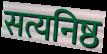
सत्यनिष्ठ